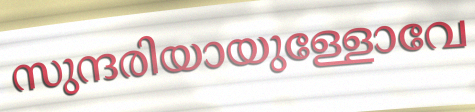
സുന്ദരിയായുള്ളോവേ